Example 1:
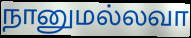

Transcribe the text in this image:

நானுமல்லவா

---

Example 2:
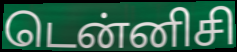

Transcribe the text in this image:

டென்னிசி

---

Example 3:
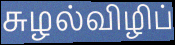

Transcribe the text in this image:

சுழல்விழிப்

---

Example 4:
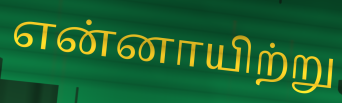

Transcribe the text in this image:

என்னாயிற்று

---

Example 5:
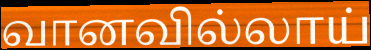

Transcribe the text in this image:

வானவில்லாய்